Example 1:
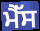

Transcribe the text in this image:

ਮੈੱਸ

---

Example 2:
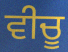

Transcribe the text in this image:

ਵੀਚੂ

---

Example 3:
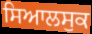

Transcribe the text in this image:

ਸਿਆਲਸੁਕ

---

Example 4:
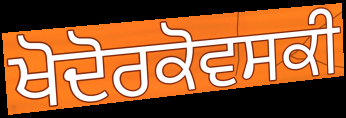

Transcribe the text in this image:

ਖੋਦੋਰਕੋਵਸਕੀ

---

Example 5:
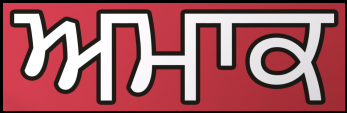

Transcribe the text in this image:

ਅਮਾਕ